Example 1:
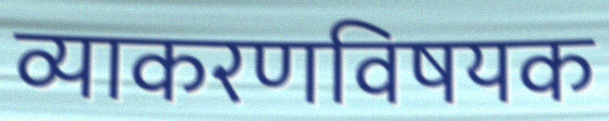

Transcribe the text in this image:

व्याकरणविषयक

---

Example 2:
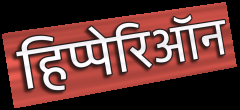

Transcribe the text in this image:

हिप्पेरिऑन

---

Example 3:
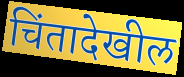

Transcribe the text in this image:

चिंतादेखील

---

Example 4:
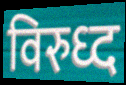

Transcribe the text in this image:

विरुध्द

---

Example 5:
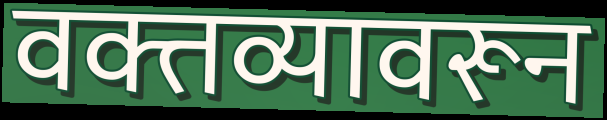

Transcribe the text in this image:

वक्तव्यावरून